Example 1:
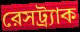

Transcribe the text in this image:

রেসট্র্যাক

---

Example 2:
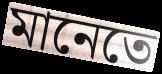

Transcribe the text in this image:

মানেতে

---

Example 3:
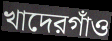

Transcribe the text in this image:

খাদেরগাঁও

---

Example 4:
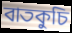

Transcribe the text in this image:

বাতকুচি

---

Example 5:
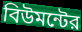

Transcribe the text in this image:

বিউমন্টের